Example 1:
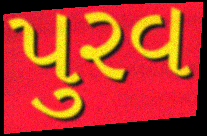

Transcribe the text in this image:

પુરવ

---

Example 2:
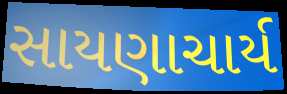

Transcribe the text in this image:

સાયણાચાર્ય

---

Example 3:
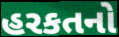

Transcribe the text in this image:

હરકતનો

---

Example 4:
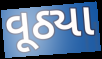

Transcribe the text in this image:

વૂઠ્યા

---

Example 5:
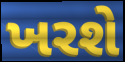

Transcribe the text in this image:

ખરશે